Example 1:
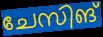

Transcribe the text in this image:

ചേസിങ്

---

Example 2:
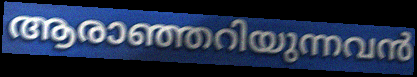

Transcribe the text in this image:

ആരാഞ്ഞറിയുന്നവൻ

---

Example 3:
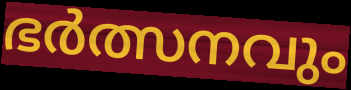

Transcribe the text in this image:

ഭർത്സനവും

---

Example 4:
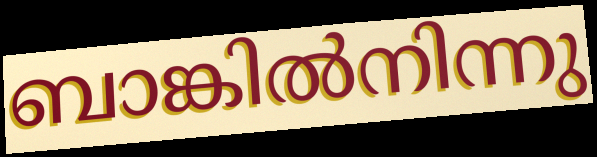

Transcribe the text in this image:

ബാങ്കിൽനിന്നു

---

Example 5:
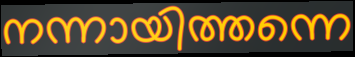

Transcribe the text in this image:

നന്നായിത്തന്നെ